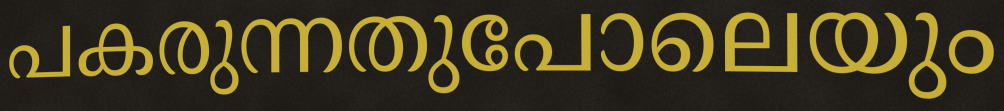
പകരുന്നതുപോലെയും